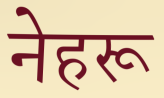
नेहरू